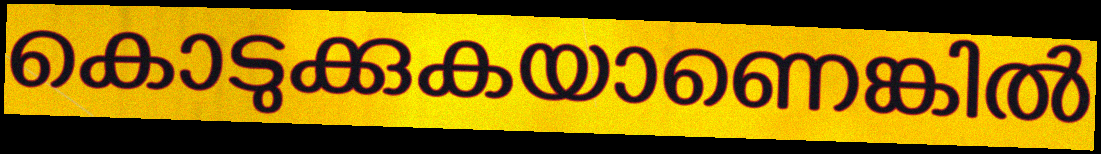
കൊടുക്കുകയാണെങ്കിൽ